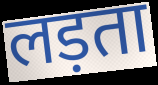
लड़ता